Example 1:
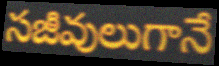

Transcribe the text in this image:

సజీవులుగానే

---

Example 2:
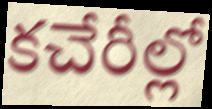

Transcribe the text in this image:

కచేరీల్లో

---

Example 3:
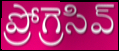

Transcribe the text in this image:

ప్రోగ్రెసివ్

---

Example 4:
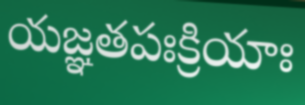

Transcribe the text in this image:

యజ్ఞతపఃక్రియాః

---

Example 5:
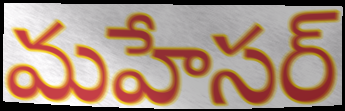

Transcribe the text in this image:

మహేసర్